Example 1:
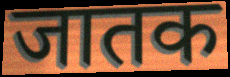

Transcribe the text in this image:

जातक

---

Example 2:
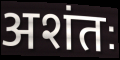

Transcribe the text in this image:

अशंतः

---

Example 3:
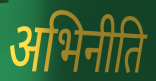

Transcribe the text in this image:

अभिनीति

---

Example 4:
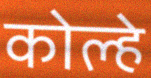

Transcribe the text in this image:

कोल्हे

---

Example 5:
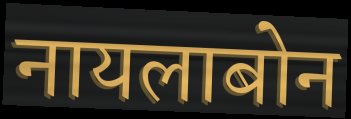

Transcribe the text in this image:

नायलाबोन